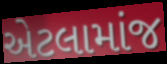
એટલામાંજ